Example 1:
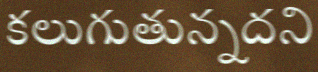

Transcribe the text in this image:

కలుగుతున్నదని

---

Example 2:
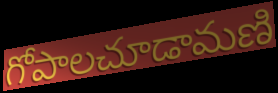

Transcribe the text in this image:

గోపాలచూడామణి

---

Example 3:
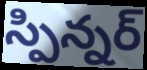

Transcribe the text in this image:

స్పిన్నర్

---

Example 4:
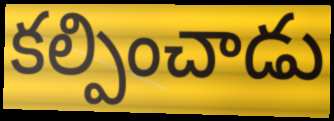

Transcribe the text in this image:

కల్పించాడు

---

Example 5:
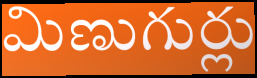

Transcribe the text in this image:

మిణుగుర్లు